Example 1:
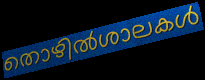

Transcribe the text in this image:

തൊഴിൽശാലകൾ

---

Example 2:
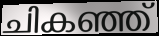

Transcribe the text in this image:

ചികഞ്ഞ്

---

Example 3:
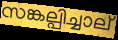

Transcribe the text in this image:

സങ്കല്പിച്ചാല്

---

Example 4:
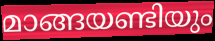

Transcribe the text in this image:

മാങ്ങയണ്ടിയും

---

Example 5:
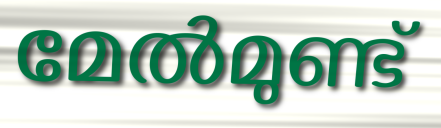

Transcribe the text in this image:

മേൽമുണ്ട്